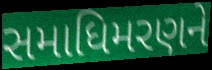
સમાધિમરણને